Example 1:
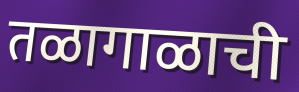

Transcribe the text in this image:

तळागाळाची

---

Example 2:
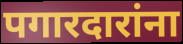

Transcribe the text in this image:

पगारदारांना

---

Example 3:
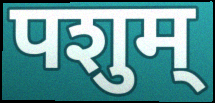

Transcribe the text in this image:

पशुम्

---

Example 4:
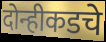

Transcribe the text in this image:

दोन्हीकडचे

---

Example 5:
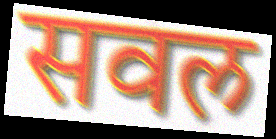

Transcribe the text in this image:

सवल